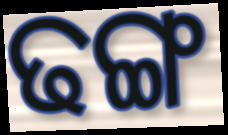
ଢଙ୍ଗ